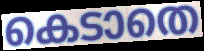
കെടാതെ